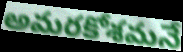
అమరకోశమనే